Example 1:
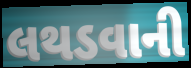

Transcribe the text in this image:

લથડવાની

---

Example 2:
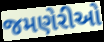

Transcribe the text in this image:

જમણેરીઓ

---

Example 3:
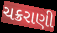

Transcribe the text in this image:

ચક્રરાણી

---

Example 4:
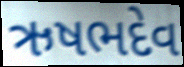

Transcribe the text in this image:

ઋષભદેવ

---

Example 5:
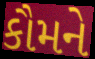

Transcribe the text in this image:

કૌમને